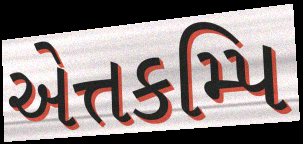
એત્તકમ્પિ